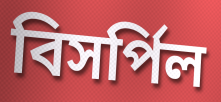
বিসর্পিল